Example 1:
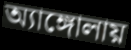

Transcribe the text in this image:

অ্যাঙ্গোলায়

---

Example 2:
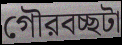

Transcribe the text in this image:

গৌরবচ্ছটা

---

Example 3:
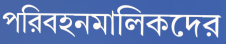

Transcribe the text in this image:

পরিবহনমালিকদের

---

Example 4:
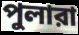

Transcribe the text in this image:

পুলারা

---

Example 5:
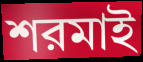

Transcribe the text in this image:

শরমাই